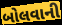
બોલવાની